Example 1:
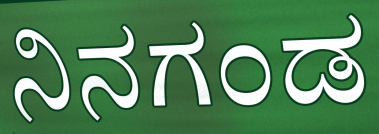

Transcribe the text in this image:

ನಿನಗಂಡ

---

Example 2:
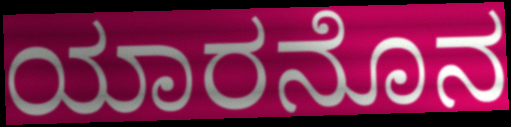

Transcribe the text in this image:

ಯಾರನೊನ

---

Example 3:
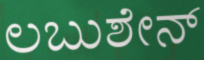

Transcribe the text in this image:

ಲಬುಶೇನ್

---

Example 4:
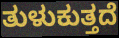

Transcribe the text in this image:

ತುಳುಕುತ್ತದೆ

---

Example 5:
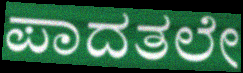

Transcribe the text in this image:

ಪಾದತಲೇ